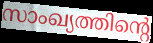
സാംഖ്യത്തിന്റെ